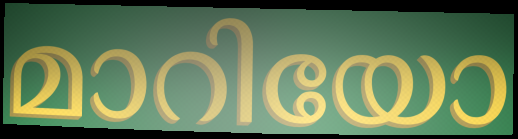
മാറിയോ